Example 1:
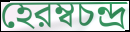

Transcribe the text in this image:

হেরম্বচন্দ্র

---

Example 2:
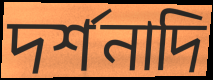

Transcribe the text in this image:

দর্শনাদি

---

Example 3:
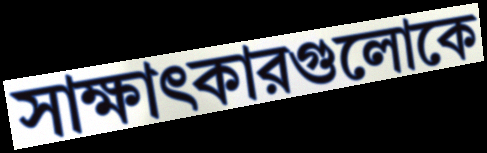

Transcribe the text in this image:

সাক্ষাৎকারগুলোকে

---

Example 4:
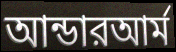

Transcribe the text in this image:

আন্ডারআর্ম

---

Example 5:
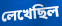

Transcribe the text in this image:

লেখেছিল